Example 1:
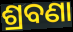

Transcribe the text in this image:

ଶ୍ରବଣା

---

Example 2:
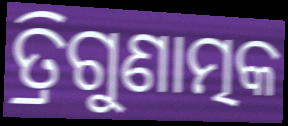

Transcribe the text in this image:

ତ୍ରିଗୁଣାତ୍ମକ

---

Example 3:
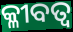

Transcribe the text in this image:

କ୍ଳୀବତ୍ବ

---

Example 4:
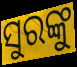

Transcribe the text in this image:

ସୁରଙ୍କୁ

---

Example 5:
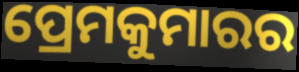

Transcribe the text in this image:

ପ୍ରେମକୁମାରର